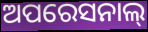
ଅପରେସନାଲ୍